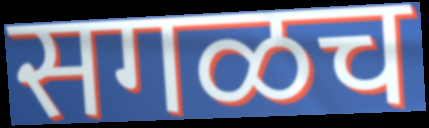
सगळच